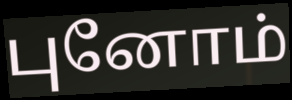
புனோம்